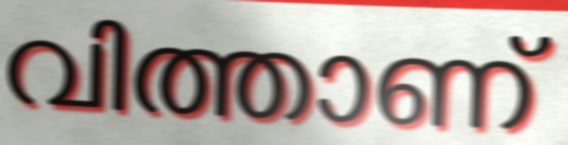
വിത്താണ്